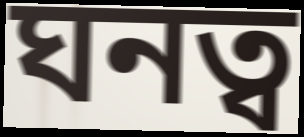
ঘনত্ব